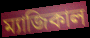
ম্যাজিকাল